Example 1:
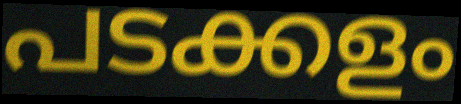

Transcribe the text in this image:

പടക്കളം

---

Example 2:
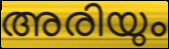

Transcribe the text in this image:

അരിയും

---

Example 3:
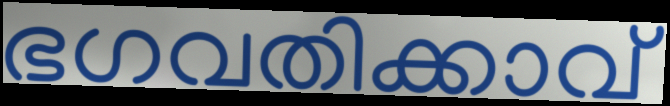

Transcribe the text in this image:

ഭഗവതിക്കാവ്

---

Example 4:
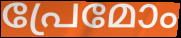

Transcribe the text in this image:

പ്രേമോം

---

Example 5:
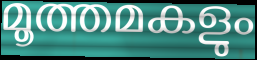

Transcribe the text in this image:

മൂത്തമകളും